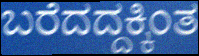
ಬರೆದದ್ದಕ್ಕಿಂತ